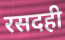
रसदही